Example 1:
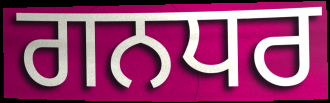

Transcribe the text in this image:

ਗਨਧਰ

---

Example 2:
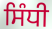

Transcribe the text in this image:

ਸਿੰਧੀ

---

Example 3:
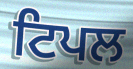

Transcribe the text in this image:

ਟਿਪਲ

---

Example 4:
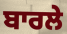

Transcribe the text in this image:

ਬਾਰਲੇ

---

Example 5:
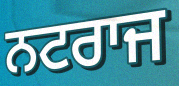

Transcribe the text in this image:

ਨਟਰਾਜ